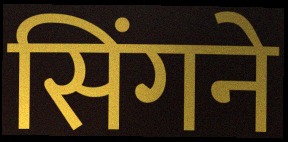
सिंगने